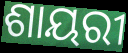
ଶାୟରୀ